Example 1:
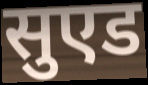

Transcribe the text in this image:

सुएड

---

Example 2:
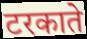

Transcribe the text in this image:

टरकाते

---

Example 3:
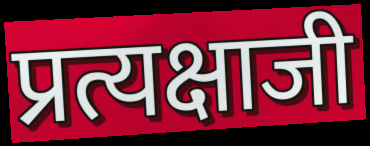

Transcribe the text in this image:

प्रत्यक्षाजी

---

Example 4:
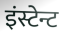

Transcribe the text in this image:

इंस्टेन्ट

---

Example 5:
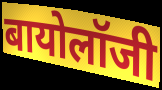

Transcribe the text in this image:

बायोलॉजी